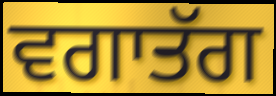
ਵਗਾਤੱਗ